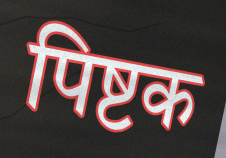
पिष्टक